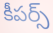
కీపర్స్